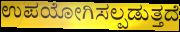
ಉಪಯೋಗಿಸಲ್ಪಡುತ್ತದೆ